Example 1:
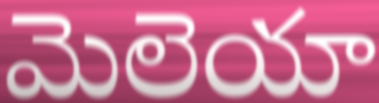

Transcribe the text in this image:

మెలెయా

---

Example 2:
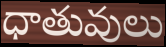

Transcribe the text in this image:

ధాతువులు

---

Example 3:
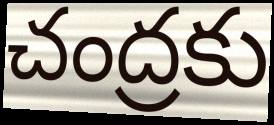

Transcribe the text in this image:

చంద్రకు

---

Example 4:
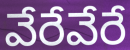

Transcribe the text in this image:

వేరేవేరే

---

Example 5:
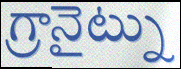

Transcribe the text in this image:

గ్రానైట్ను